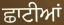
ਛਾਟੀਆਂ